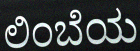
ಲಿಂಬೆಯ